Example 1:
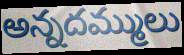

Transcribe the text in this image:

అన్నదమ్ములు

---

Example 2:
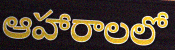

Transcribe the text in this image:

ఆహారాలలో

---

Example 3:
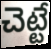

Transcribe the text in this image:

చెట్టే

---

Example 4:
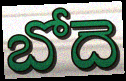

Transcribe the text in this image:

బోదె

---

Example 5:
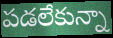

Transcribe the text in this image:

పడలేకున్నా